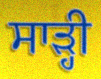
ਸਾੜ੍ਹੀ